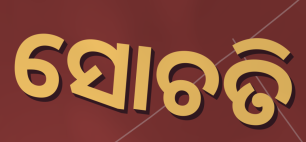
ସୋଚତି